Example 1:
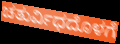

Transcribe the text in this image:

ಚತುರ್ವಿಧದೊಳಗೆ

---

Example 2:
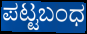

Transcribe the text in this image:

ಪಟ್ಟಬಂಧ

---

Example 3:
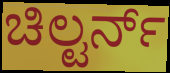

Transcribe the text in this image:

ಚಿಲ್ಟರ್ನ್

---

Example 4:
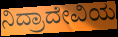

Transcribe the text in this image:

ನಿದ್ರಾದೇವಿಯ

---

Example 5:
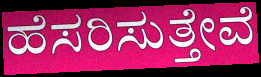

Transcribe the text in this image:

ಹೆಸರಿಸುತ್ತೇವೆ